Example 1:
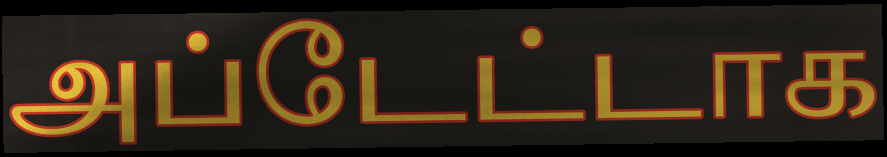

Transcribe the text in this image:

அப்டேட்டாக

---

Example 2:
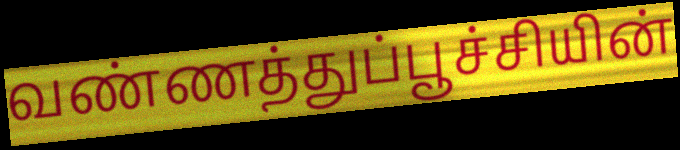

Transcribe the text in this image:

வண்ணத்துப்பூச்சியின்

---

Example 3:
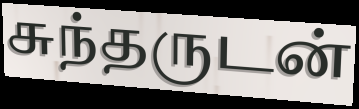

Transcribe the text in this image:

சுந்தருடன்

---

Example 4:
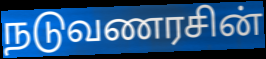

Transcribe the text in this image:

நடுவணரசின்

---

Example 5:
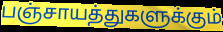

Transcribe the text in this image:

பஞ்சாயத்துகளுக்கும்